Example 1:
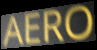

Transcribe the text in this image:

AERO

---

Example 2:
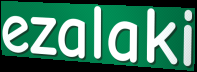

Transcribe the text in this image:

ezalaki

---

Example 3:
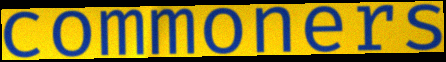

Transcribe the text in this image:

commoners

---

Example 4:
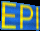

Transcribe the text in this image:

EPI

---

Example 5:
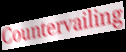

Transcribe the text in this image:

Countervailing